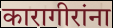
कारागीरांना